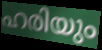
ഹരിയും